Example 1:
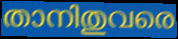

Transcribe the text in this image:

താനിതുവരെ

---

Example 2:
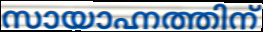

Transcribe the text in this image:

സായാഹ്നത്തിന്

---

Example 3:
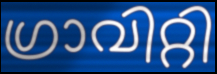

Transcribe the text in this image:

ഗ്രാവിറ്റി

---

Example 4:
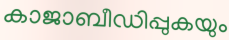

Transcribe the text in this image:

കാജാബീഡിപ്പുകയും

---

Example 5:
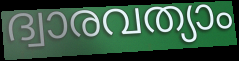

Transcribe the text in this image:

ദ്വാരവത്യാം